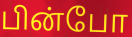
பின்போ